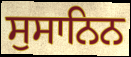
ਸੁਸਾਨਿਨ